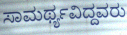
ಸಾಮರ್ಥ್ಯವಿದ್ದವರು